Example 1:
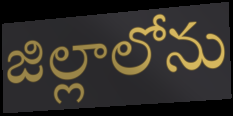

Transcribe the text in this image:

జిల్లాలోను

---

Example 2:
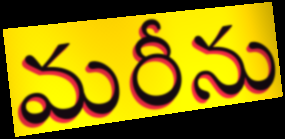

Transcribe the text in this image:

మరీను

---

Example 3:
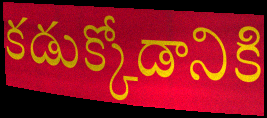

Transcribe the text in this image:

కడుక్కోడానికి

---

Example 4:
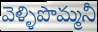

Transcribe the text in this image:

వెళ్ళిపొమ్మనీ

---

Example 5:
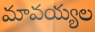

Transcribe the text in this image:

మావయ్యల